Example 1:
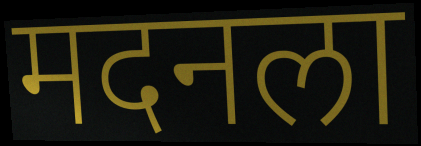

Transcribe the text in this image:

मदनला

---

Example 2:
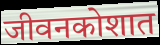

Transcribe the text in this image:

जीवनकोशात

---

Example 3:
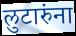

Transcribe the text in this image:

लुटारुंना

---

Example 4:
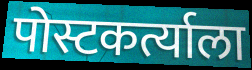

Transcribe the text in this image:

पोस्टकर्त्याला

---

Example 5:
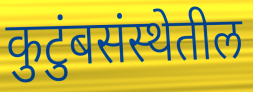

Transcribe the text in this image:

कुटुंबसंस्थेतील